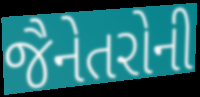
જૈનેતરોની